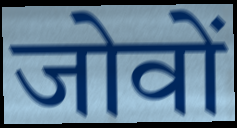
जोवों